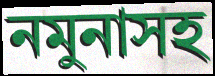
নমুনাসহ